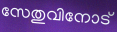
സേതുവിനോട്